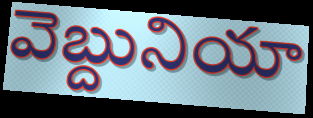
వెబ్దునియా